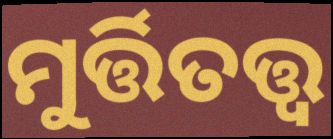
ମୁର୍ତ୍ତିତତ୍ତ୍ବ